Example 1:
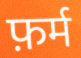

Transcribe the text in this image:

फ़र्म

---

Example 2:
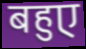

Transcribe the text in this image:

बहुए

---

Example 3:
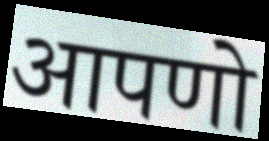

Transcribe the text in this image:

आपणो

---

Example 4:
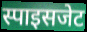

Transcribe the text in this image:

स्पाइसजेट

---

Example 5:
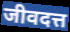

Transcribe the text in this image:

जीवदत्त